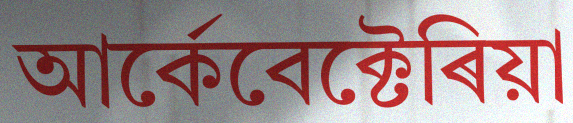
আৰ্কেবেক্টেৰিয়া